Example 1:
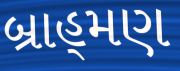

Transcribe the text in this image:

બ્રાહ્‌મણ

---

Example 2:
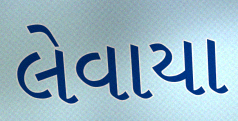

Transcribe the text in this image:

લેવાયા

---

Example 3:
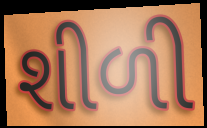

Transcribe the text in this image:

શીળી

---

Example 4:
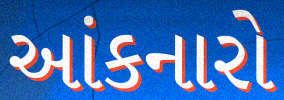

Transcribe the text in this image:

આંકનારો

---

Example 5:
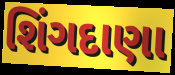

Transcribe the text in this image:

શિંગદાણા